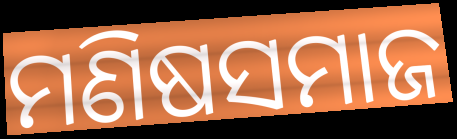
ମଣିଷସମାଜ